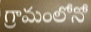
గ్రామంలోనో